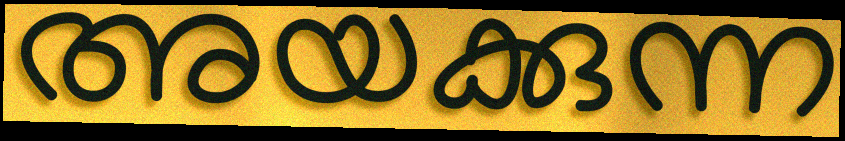
അയക്കുന്ന